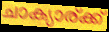
ചാക്യാര്ക്ക്